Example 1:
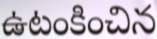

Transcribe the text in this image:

ఉటంకించిన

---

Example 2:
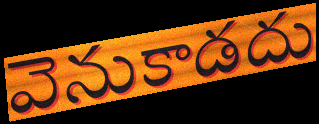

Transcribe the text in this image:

వెనుకాడదు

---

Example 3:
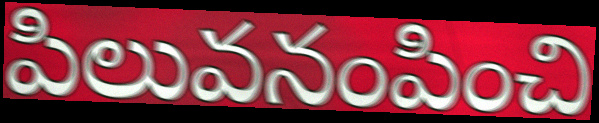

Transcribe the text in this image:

పిలువనంపించి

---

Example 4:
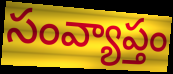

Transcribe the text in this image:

సంవ్యాప్తం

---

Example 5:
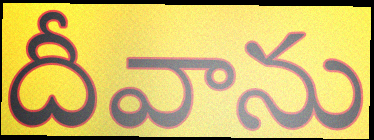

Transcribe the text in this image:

దీవాను